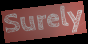
Surely